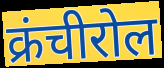
क्रंचीरोल